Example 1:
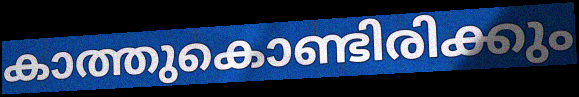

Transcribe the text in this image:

കാത്തുകൊണ്ടിരിക്കും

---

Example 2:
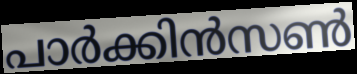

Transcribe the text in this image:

പാർക്കിൻസൺ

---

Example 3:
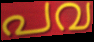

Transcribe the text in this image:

പവ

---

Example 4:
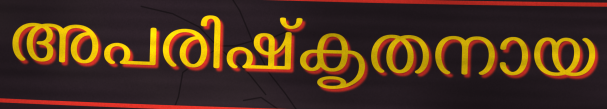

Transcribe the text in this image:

അപരിഷ്‌കൃതനായ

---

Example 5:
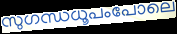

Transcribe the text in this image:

സുഗന്ധധൂപംപോലെ